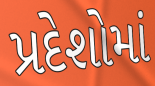
પ્રદેશોમાં